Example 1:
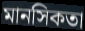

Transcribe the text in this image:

মানসিকতা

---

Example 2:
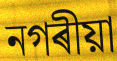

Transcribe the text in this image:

নগৰীয়া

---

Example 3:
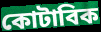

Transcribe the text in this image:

কোটাবিক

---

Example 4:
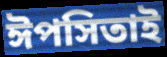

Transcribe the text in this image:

ঈপসিতাই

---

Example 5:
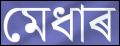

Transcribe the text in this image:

মেধাৰ